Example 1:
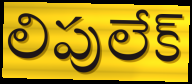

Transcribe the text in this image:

లిపులేక్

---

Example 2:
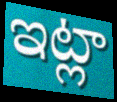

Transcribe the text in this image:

ఇట్లా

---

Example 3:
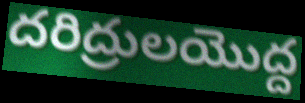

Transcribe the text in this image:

దరిద్రులయొద్ద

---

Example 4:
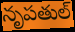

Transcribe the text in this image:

నృపతుల్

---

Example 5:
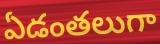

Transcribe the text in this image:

ఏడంతలుగా